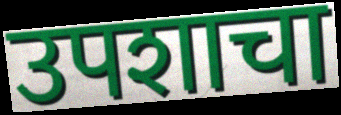
उपशाचा